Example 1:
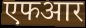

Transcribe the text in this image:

एफआर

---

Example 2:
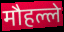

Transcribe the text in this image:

मौहल्ले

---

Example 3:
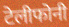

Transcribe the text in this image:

टेलीफोनी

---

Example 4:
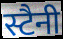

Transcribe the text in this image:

स्टैनी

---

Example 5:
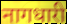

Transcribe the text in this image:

नागधारी